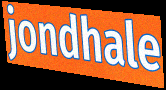
jondhale